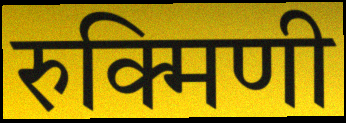
रुक्‍मिणी